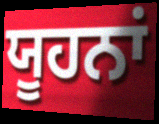
ਯੂਹਨਾਂ